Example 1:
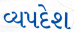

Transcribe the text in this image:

વ્યપદેશ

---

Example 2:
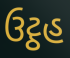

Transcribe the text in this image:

ઉટ્ઠહ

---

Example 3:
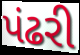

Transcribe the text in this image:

પંઢરી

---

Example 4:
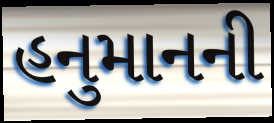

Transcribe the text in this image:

હનુમાનની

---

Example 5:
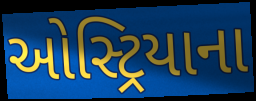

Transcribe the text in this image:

ઓસ્ટ્રિયાના